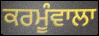
ਕਰਮੂੰਵਾਲਾ